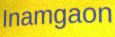
Inamgaon